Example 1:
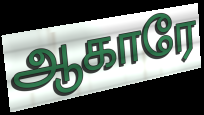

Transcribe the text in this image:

ஆகாரே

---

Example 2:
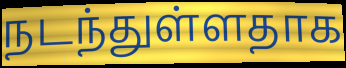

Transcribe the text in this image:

நடந்துள்ளதாக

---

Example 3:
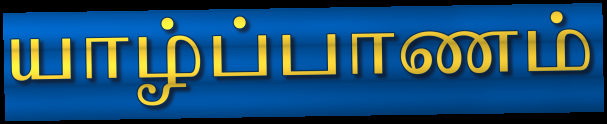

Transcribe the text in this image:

யாழ்ப்பாணம்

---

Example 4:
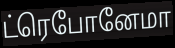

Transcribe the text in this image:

ட்ரெபோனேமா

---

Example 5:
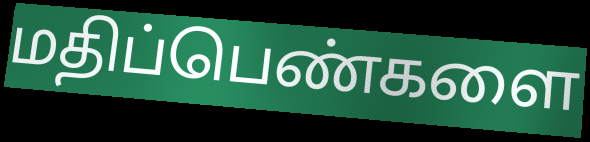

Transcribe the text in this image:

மதிப்பெண்களை